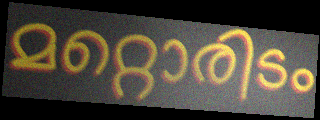
മറ്റൊരിടം